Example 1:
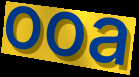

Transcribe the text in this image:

ooa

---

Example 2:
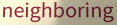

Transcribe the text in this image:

neighboring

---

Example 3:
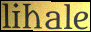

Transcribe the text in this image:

lihale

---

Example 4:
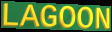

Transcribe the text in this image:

LAGOON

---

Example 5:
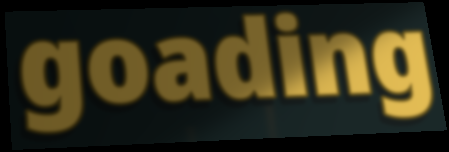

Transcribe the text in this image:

goading